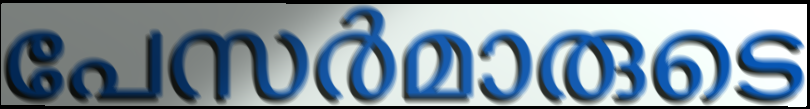
പേസർമാരുടെ